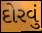
દોરવું